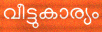
വീട്ടുകാര്യം